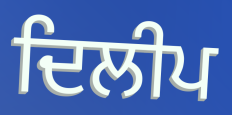
ਦਿਲੀਪ